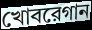
খোবরেগান